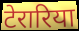
टेरारिया